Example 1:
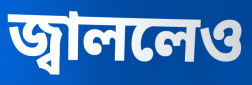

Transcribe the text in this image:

জ্বাললেও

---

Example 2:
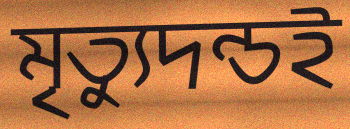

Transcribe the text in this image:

মৃত্যুদন্ডই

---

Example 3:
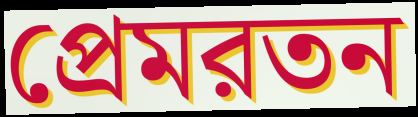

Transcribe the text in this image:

প্রেমরতন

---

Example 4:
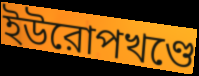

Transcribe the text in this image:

ইউরোপখণ্ডে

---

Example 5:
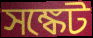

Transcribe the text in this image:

সঙ্কেট